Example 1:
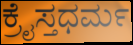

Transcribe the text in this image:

ಕ್ರೈಸ್ತಧರ್ಮ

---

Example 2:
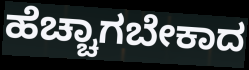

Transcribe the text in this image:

ಹೆಚ್ಚಾಗಬೇಕಾದ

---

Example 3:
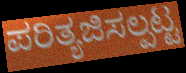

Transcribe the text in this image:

ಪರಿತ್ಯಜಿಸಲ್ಪಟ್ಟ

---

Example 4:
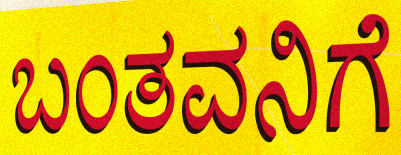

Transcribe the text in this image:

ಬಂತವನಿಗೆ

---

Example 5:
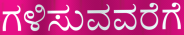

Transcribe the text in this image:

ಗಳಿಸುವವರೆಗೆ